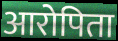
आरोपिता